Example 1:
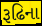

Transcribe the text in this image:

રૂઢિના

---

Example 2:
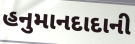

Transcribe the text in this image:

હનુમાનદાદાની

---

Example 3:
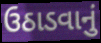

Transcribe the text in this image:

ઉઠાડવાનું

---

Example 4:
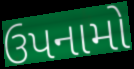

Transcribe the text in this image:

ઉપનામો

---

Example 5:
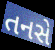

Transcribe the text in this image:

તનસે